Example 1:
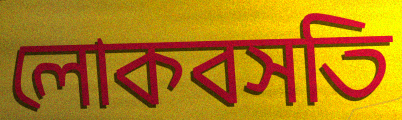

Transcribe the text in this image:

লোকবসতি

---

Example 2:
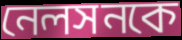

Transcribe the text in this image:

নেলসনকে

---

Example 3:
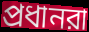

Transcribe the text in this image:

প্রধানরা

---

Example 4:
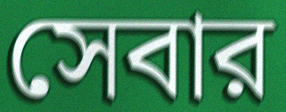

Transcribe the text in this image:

সেবার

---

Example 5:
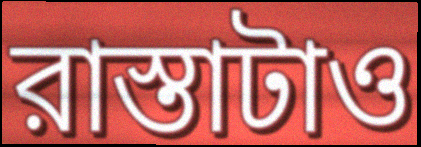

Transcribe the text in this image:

রাস্তাটাও